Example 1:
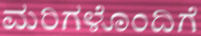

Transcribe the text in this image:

ಮರಿಗಳೊಂದಿಗೆ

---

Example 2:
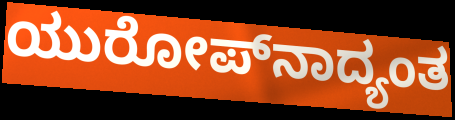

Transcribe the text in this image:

ಯುರೋಪ್‌ನಾದ್ಯಂತ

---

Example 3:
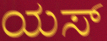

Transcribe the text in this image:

ಯಸ್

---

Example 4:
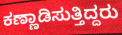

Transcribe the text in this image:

ಕಣ್ಣಾಡಿಸುತ್ತಿದ್ದರು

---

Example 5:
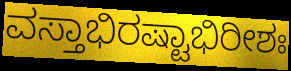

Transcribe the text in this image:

ವಸ್ತಾಭಿರಷ್ಟಾಭಿರೀಶಃ